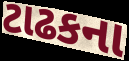
ટાઢકના